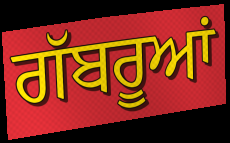
ਗੱਬਰੂਆਂ